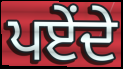
ਪਏਂਦੇ